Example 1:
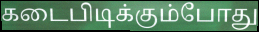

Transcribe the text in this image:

கடைபிடிக்கும்போது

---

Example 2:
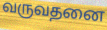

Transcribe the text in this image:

வருவதனை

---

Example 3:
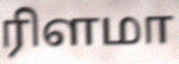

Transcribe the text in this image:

ரிளமா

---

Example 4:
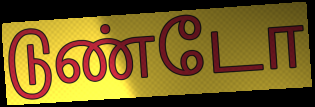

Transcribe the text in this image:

டுண்டோ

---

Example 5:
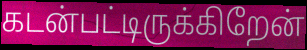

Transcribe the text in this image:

கடன்பட்டிருக்கிறேன்